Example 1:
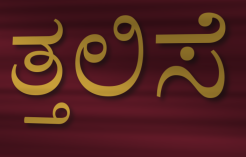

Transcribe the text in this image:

ತ್ತಲಿಸೆ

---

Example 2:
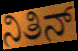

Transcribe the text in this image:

ನಿತಿನ್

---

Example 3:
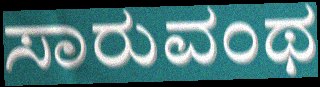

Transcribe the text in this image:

ಸಾರುವಂಥ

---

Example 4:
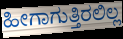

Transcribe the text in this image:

ಹೀಗಾಗುತ್ತಿರಲಿಲ್ಲ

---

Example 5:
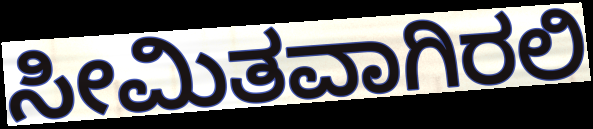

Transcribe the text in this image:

ಸೀಮಿತವಾಗಿರಲಿ